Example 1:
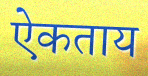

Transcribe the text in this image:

ऐकताय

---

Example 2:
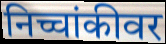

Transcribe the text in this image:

निच्चांकीवर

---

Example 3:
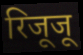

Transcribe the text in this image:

रिजूजू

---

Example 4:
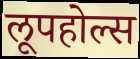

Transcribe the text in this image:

लूपहोल्स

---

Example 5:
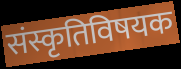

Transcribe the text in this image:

संस्कृतिविषयक